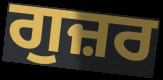
ਗੁਜ਼ਰ